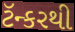
ટૅન્કરથી